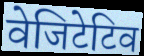
वेजिटेटिव